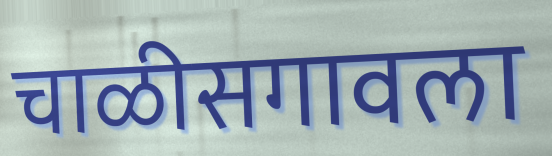
चाळीसगावला